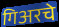
गिअरचे